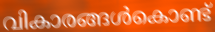
വികാരങ്ങൾകൊണ്ട്